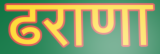
ढराणा